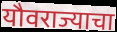
यौवराज्याचा